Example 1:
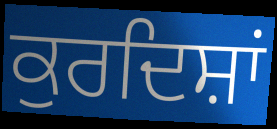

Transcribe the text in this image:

ਕੁਰਦਿਸ਼ਾਂ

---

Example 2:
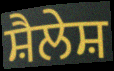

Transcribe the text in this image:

ਸ਼ੈਲੇਸ਼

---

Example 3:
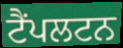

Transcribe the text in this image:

ਟੈਂਪਲਟਨ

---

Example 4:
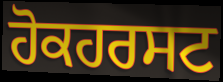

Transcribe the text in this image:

ਹੋਕਹਰਸਟ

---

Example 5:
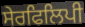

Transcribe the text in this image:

ਸੇਰਫਿਲਿਪੀ